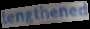
lengthened